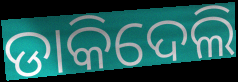
ଡାକିଦେଲି